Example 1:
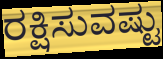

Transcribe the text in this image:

ರಕ್ಷಿಸುವಷ್ಟು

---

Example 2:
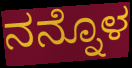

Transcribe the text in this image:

ನನ್ನೊಳ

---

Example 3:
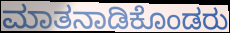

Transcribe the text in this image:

ಮಾತನಾಡಿಕೊಂಡರು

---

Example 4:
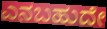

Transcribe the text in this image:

ಎನಬಹುದೇ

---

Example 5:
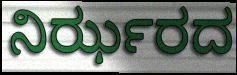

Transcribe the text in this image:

ನಿರ್ಝರದ